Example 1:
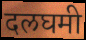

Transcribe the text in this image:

दलघमी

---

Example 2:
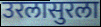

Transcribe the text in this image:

उरलासुरला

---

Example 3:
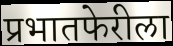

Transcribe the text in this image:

प्रभातफेरीला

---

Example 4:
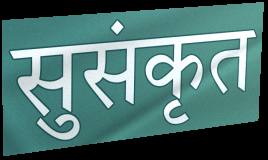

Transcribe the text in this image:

सुसंकृत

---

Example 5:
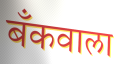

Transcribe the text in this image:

बँकवाला